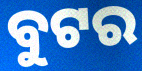
ବୁଟର